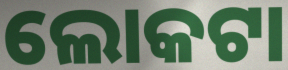
ଲୋକଟା